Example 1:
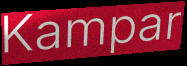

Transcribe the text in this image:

Kampar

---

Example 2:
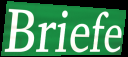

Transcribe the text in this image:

Briefe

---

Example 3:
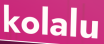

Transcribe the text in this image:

kolalu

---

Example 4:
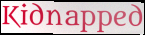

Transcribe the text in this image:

Kidnapped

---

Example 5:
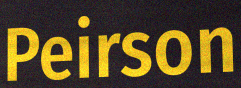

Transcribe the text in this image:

Peirson